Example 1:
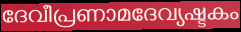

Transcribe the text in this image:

ദേവീപ്രണാമദേവ്യഷ്ടകം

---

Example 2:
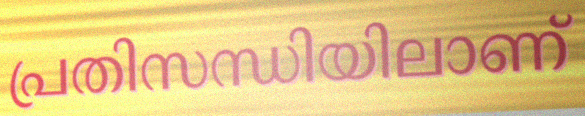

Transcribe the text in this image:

പ്രതിസന്ധിയിലാണ്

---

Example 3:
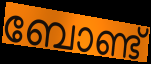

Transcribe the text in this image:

ബോണ്ട്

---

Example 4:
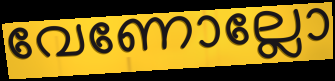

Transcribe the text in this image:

വേണോല്ലോ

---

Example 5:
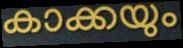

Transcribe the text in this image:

കാക്കയും